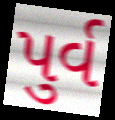
પુર્વ